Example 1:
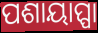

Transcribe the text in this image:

ପଶାୟାପ୍ପା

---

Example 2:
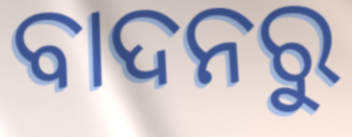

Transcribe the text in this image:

ବାଦନରୁ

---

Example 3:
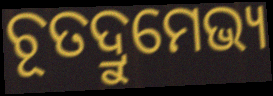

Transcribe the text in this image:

ଚୂତଦ୍ରୁମେଭ୍ୟ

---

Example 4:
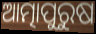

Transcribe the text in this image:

ଆତ୍ମାପୁରୁଷ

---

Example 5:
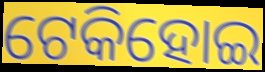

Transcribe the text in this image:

ଟେକିହୋଇ